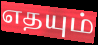
எதயும்